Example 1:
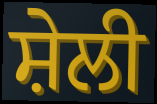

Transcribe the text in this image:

ਸ਼ੇਲੀ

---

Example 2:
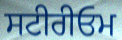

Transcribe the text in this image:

ਸਟੀਰੀਓਮ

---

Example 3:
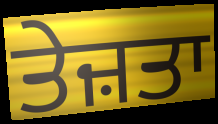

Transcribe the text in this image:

ਤੇਜ਼ਤਾ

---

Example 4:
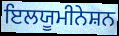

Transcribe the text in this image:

ਇਲਯੂਮੀਨੇਸ਼ਨ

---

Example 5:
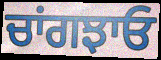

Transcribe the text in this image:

ਚਾਂਗਝਾਓ